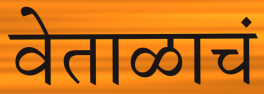
वेताळाचं